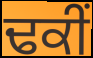
ਢਕੀਂ